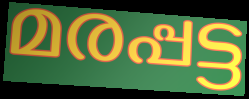
മരപ്പട്ട